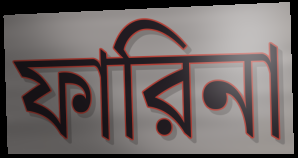
ফারিনা